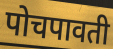
पोचपावती